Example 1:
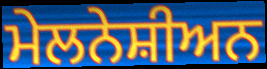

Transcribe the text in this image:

ਮੇਲਨੇਸ਼ੀਅਨ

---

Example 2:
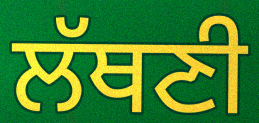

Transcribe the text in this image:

ਲੱਥਣੀ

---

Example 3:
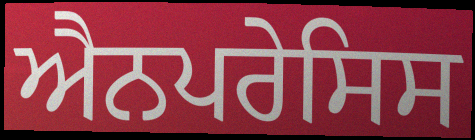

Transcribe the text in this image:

ਐਨਪਰੇਸਿਸ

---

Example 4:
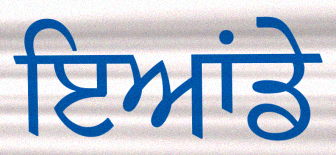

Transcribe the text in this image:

ਇਆਂਡੇ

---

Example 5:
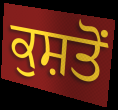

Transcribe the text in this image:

ਕੁਸ਼ਤੋਂ